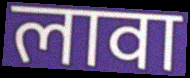
लावा